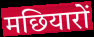
मछियारों